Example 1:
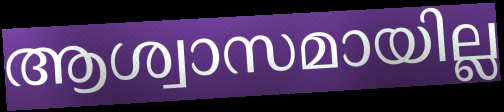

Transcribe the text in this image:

ആശ്വാസമായില്ല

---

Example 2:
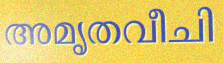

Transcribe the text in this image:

അമൃതവീചി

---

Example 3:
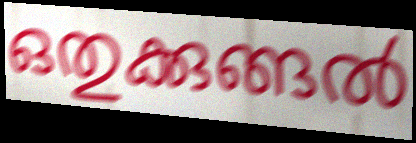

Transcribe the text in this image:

ഒതുക്കുങ്ങൽ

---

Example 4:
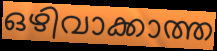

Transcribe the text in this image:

ഒഴിവാക്കാത്ത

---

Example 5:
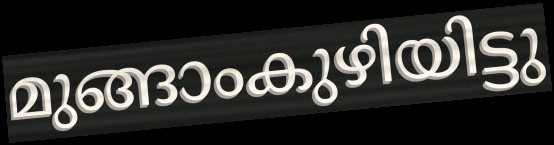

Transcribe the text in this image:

മുങ്ങാംകുഴിയിട്ടു